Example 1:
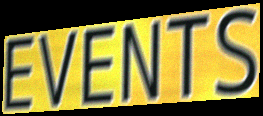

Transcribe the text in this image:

EVENTS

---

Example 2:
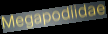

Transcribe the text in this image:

Megapodiidae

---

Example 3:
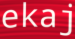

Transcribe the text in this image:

ekaj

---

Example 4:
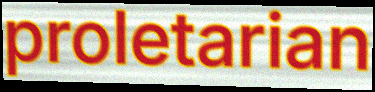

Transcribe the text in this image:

proletarian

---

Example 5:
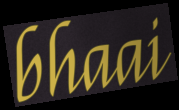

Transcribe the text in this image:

bhaai